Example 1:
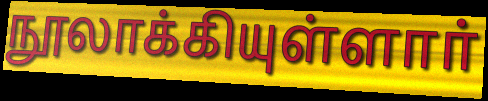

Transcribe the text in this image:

நூலாக்கியுள்ளார்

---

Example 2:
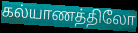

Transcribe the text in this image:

கல்யாணத்திலோ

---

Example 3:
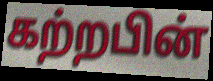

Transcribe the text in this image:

கற்றபின்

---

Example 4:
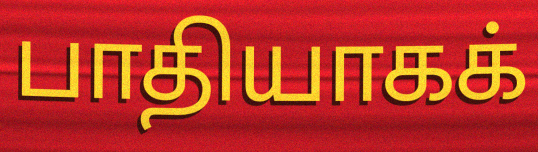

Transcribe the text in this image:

பாதியாகக்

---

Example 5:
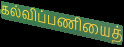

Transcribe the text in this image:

கல்விப்பணியைத்